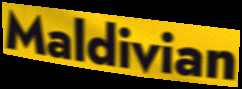
Maldivian